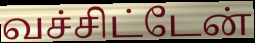
வச்சிட்டேன்